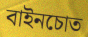
বাইনচোত